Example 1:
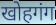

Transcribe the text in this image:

खोहगंग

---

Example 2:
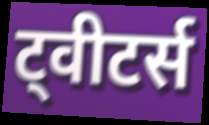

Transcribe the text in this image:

ट्वीटर्स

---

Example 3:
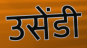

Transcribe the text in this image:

उसेंडी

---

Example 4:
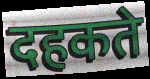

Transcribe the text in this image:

दहकते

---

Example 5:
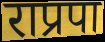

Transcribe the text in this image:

राप्रपा